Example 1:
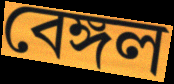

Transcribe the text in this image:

বেঙ্গল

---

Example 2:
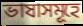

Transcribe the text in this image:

ভাষাসমূহে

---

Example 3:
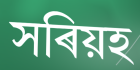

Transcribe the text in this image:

সৰিয়হ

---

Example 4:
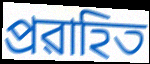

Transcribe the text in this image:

প্ৰৱাহিত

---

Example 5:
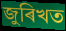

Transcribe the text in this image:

জুৰিখত